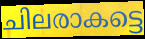
ചിലരാകട്ടെ